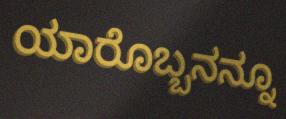
ಯಾರೊಬ್ಬನನ್ನೂ